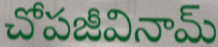
చోపజీవినామ్